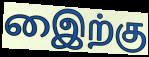
இைற்கு